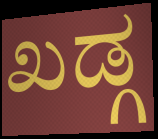
ಖಡ್ಗ